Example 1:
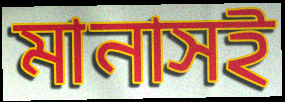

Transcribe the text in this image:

মানাসই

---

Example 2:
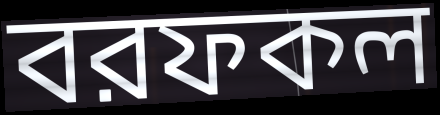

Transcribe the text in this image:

বরফকল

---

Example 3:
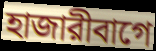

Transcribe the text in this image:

হাজারীবাগে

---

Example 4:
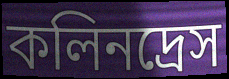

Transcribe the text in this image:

কলিনদ্রেস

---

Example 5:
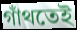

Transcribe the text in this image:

গাঁথতেই